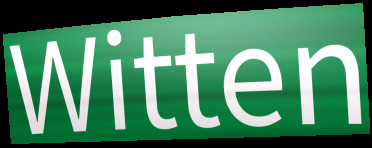
Witten